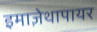
इमाज़ेथापायर